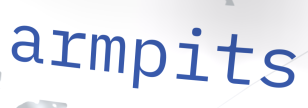
armpits